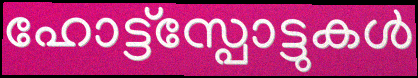
ഹോട്ട്സ്പോട്ടുകൾ